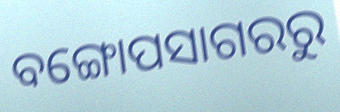
ବଙ୍ଗୋପସାଗରରୁ